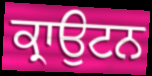
ਕ੍ਰਾਉਟਨ